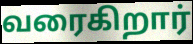
வரைகிறார்